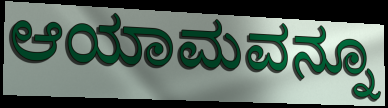
ಆಯಾಮವನ್ನೂ